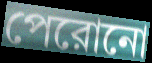
পেরোনো